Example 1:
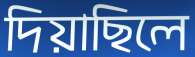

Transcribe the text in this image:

দিয়াছিলে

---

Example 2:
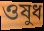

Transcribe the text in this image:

ওষুধ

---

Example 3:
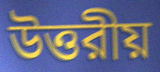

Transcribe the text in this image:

উত্তরীয়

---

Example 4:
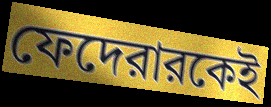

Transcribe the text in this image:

ফেদেরারকেই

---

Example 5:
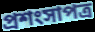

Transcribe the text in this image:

প্রশংসাপত্র